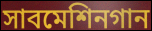
সাবমেশিনগান